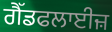
ਗੈੱਡਫਲਾਈਜ਼